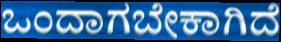
ಒಂದಾಗಬೇಕಾಗಿದೆ